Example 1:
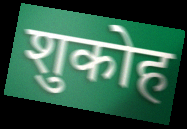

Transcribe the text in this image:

शुकोह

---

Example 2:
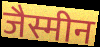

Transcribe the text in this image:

जैस्मीन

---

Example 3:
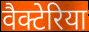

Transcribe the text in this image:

वैक्टेरिया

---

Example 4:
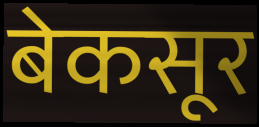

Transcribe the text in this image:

बेकसूर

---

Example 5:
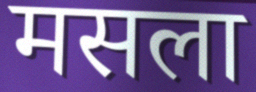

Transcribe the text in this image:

मसला